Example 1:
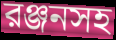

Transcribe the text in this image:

রঞ্জনসহ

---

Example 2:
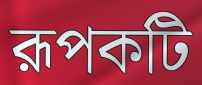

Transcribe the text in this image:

রূপকটি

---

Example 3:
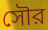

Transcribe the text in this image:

সৌর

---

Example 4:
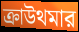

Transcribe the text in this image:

ক্রাউথমার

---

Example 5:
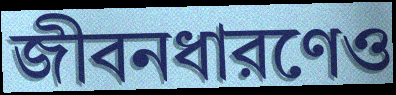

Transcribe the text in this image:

জীবনধারণেও